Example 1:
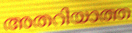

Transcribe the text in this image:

അതറിയാത്ത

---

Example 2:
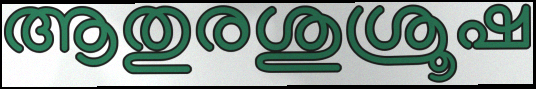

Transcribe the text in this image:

ആതുരശുശ്രൂഷ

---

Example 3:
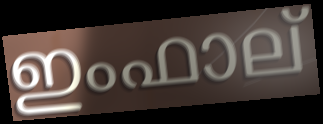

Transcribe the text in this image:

ഇംഫാല്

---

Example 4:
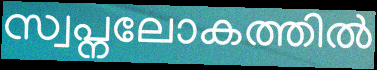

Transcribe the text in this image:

സ്വപ്നലോകത്തിൽ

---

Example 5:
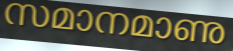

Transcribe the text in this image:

സമാനമാണു